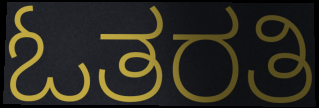
ಓತರತಿ